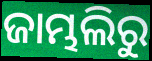
ଜାମ୍ଭଲିରୁ